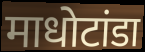
माधोटांडा